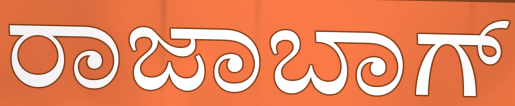
ರಾಜಾಬಾಗ್